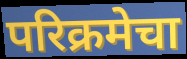
परिक्रमेचा